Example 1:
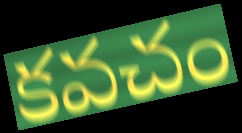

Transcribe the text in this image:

కవచం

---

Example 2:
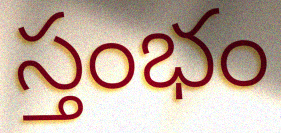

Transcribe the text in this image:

స్తంభం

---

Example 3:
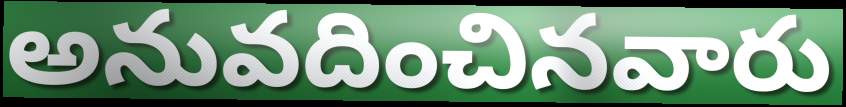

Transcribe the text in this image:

అనువదించినవారు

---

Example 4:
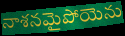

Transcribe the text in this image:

నాశనమైపోయెను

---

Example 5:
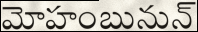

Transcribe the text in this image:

మోహంబునున్